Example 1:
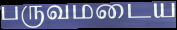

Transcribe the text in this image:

பருவமடைய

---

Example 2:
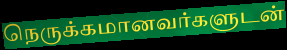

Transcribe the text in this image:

நெருக்கமானவர்களுடன்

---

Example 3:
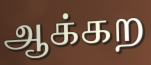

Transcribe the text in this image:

ஆக்கற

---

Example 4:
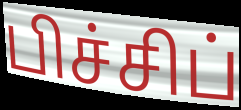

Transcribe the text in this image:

பிச்சிப்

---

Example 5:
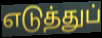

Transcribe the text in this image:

எடுத்துப்